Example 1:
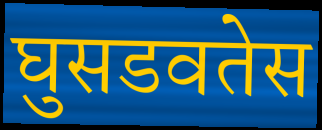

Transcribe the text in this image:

घुसडवतेस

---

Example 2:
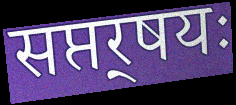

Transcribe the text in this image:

सप्तर्षयः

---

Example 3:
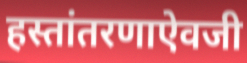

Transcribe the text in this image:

हस्तांतरणाऐवजी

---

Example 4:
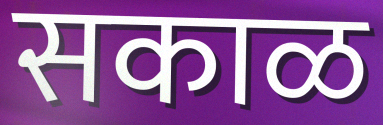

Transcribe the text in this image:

सकाळ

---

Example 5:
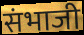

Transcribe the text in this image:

संभाजी